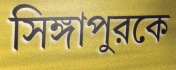
সিঙ্গাপুরকে